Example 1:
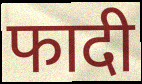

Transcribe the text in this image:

फादी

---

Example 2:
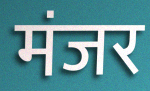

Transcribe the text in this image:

मंजर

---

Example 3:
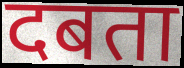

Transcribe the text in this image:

दबता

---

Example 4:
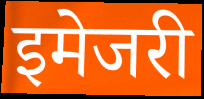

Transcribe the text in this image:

इमेजरी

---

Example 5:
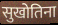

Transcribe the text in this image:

सुखोतिना